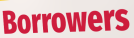
Borrowers